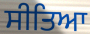
ਸੀਤਿਆ